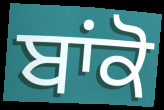
ਬਾਂਕੋ